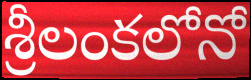
శ్రీలంకలోనో